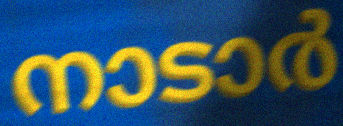
നാടാർ